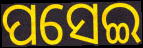
ପସେଇ